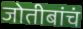
जोतीबांचं